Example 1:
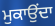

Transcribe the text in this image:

ਮੁਕਾਉਂਦਾ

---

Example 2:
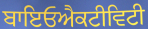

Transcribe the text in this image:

ਬਾਇਓਐਕਟੀਵਿਟੀ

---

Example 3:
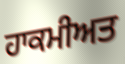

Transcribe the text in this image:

ਹਾਕਮੀਅਤ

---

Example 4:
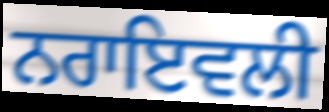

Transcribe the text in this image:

ਨਰਾਇਵਲੀ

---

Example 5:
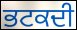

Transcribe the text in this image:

ਭਟਕਦੀ